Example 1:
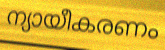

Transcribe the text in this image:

ന്യായീകരണം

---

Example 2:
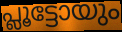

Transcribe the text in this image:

പ്ലൂട്ടോയും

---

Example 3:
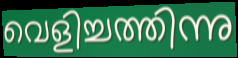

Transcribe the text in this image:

വെളിച്ചത്തിന്നു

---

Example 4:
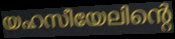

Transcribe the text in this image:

യഹസീയേലിന്റെ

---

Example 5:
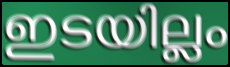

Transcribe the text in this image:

ഇടയില്ലം